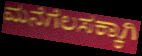
ಮನೆಗೆಲಸಕ್ಕಾಗಿ